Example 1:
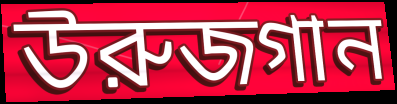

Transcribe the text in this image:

উরুজগান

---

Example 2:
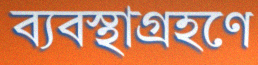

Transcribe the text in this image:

ব্যবস্থাগ্রহণে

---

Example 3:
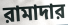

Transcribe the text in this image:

রামাদার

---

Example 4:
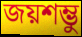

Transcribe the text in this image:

জয়শম্ভু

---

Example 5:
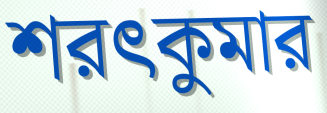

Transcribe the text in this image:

শরৎকুমার